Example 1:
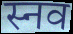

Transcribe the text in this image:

स्नव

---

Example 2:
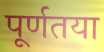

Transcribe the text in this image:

पूर्णतया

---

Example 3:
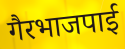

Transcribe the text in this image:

गैरभाजपाई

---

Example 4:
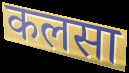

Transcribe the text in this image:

कलसा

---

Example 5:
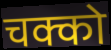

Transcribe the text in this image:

चक्को